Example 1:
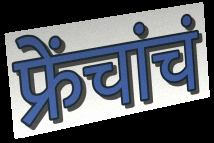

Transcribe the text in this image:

फ्रेंचांचं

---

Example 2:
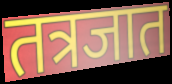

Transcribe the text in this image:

तत्रजात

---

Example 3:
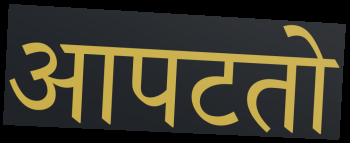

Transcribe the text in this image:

आपटतो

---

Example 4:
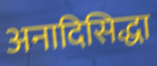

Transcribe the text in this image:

अनादिसिद्धा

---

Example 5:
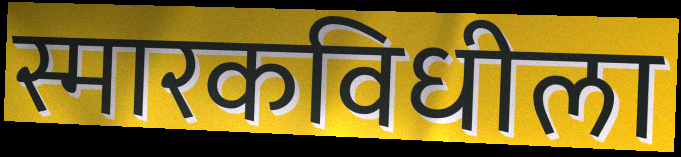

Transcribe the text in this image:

स्मारकविधीला